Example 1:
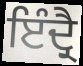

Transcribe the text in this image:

ਇੰਦ੍ਰੈ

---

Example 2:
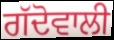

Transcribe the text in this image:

ਗੱਦੋਵਾਲੀ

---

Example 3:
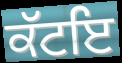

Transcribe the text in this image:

ਕੱਟਇ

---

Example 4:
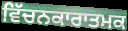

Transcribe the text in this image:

ਵਿੱਚਨਕਾਰਾਤਮਕ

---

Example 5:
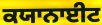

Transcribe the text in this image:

ਕਯਾਨਾਈਟ